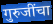
गुरुजींचा